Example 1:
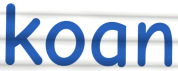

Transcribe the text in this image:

koan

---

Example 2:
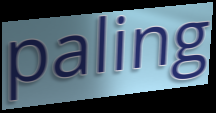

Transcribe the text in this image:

paling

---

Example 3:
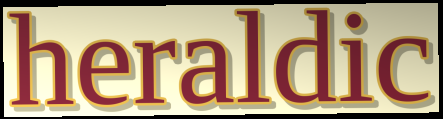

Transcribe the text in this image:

heraldic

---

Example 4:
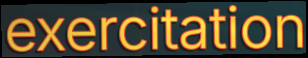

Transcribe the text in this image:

exercitation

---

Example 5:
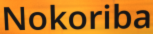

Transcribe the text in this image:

Nokoriba